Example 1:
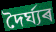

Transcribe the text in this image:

দৈৰ্ঘ্যৰ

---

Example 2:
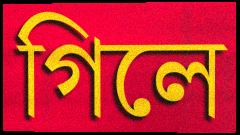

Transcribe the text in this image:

গিলে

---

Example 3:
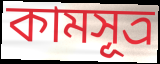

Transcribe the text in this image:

কামসূত্ৰ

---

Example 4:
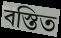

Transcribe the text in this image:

বস্তিত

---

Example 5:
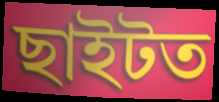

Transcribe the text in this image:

ছাইটত